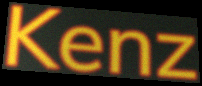
Kenz